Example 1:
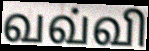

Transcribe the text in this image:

வவ்வி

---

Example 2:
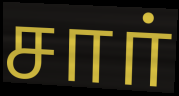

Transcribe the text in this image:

சார்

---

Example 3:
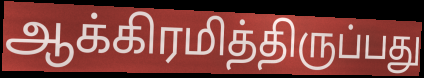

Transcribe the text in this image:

ஆக்கிரமித்திருப்பது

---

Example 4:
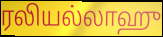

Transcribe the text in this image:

ரலியல்லாஹு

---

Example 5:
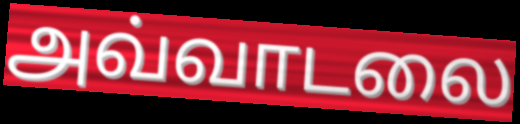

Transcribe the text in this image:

அவ்வாடலை